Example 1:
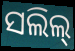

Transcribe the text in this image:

ସଲିଲ୍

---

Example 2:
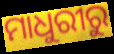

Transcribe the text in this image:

ମାଧୁରୀରୁ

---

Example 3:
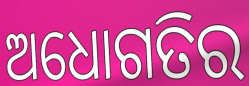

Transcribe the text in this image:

ଅଧୋଗତିର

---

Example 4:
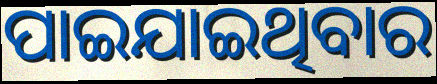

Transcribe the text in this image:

ପାଇଯାଇଥିବାର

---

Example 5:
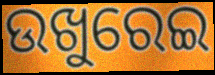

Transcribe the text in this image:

ଉଖୁରେଇ